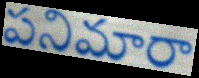
పనిమారా